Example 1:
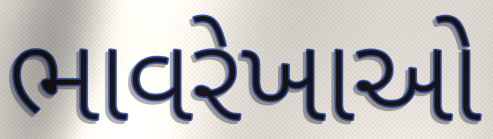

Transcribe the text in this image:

ભાવરેખાઓ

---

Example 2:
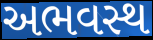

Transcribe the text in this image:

અભવસ્થ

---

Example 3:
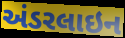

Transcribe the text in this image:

અંડરલાઇન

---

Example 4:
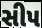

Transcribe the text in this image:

સીપ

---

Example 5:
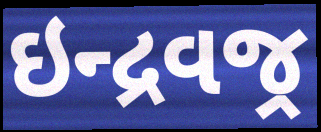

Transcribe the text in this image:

ઇન્દ્રવજ્ર